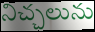
నిచ్చలును